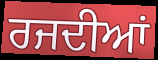
ਰਜਦੀਆਂ